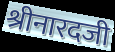
श्रीनारदजी